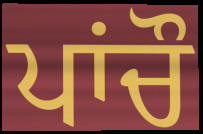
ਪਾਂਚੌ